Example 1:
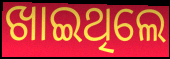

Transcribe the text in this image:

ଖାଇଥିଲେ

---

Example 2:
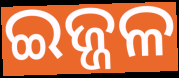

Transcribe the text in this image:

ଇଜ୍ଜଳ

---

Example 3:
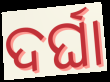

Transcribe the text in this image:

ଦର୍ଘା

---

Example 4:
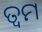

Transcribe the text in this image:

ତ୍ୱମ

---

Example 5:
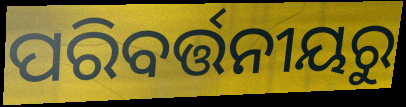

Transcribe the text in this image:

ପରିବର୍ତ୍ତନୀୟରୁ